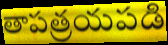
తాపత్రయపడి